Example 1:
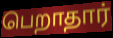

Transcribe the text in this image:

பெறாதார்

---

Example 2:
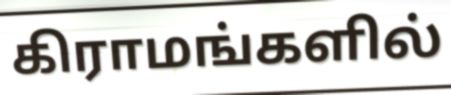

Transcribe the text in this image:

கிராமங்களில்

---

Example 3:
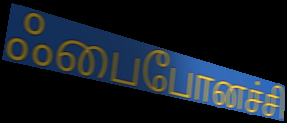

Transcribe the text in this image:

ஃபைபோனச்சி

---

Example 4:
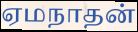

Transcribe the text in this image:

ஏமநாதன்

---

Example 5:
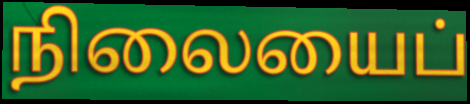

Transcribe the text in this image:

நிலையைப்